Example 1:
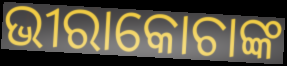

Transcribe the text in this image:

ଭୀରାକୋଚାଙ୍କ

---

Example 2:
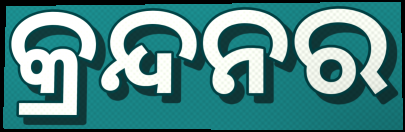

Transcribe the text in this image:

କ୍ରନ୍ଦନର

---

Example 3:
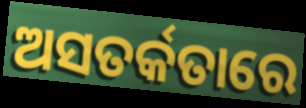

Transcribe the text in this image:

ଅସତର୍କତାରେ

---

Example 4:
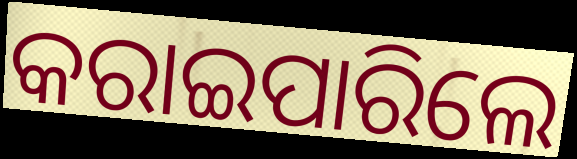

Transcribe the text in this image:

କରାଇପାରିଲେ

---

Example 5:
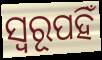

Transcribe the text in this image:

ସ୍ୱରୂପହିଁ